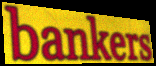
bankers